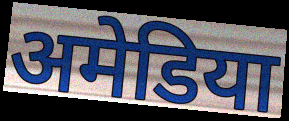
अमेडिया